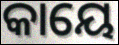
କାୟେ